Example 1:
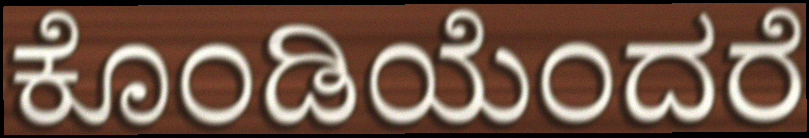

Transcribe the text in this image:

ಕೊಂಡಿಯೆಂದರೆ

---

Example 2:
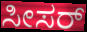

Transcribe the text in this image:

ಸೀಸರ್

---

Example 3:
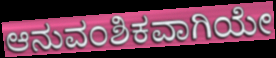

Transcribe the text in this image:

ಆನುವಂಶಿಕವಾಗಿಯೇ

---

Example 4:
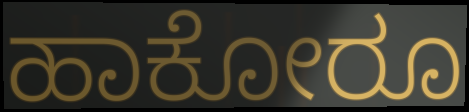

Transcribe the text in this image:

ಹಾಕೋರೂ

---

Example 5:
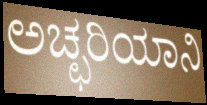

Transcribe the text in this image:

ಅಚ್ಛರಿಯಾನಿ